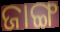
ଜାଙ୍ଗ